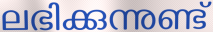
ലഭിക്കുന്നുണ്ട്